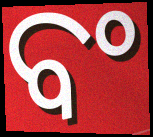
ବଂ